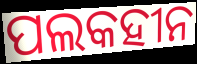
ପଲକହୀନ